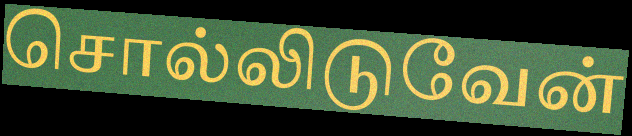
சொல்லிடுவேன்